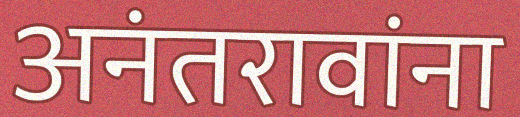
अनंतरावांना